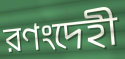
রণংদেহী